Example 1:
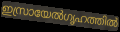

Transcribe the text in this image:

ഇസ്രായേൽഗൃഹത്തിൽ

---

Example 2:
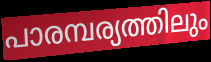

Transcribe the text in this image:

പാരമ്പര്യത്തിലും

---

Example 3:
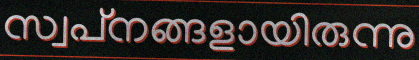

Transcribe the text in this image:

സ്വപ്‌നങ്ങളായിരുന്നു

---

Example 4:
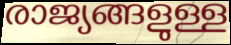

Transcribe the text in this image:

രാജ്യങ്ങളുള്ള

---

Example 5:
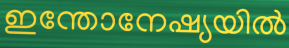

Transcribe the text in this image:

ഇന്തോനേഷ്യയിൽ